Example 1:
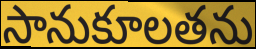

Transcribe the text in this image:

సానుకూలతను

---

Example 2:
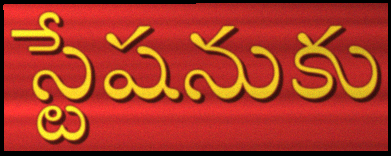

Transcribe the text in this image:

స్టేషనుకు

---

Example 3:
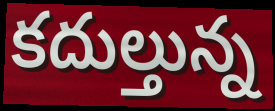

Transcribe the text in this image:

కదుల్తున్న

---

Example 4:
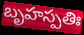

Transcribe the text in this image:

బృహస్పతిః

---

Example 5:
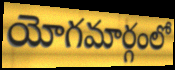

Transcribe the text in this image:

యోగమార్గంలో